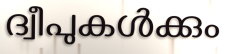
ദ്വീപുകൾക്കും